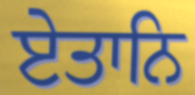
ਏਤਾਨਿ